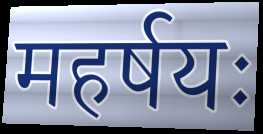
महर्षयः